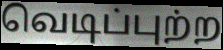
வெடிப்புற்ற